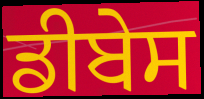
ਡੀਬੇਸ